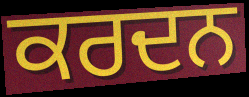
ਕਰਦਨ